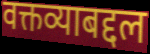
वक्तव्याबद्दल